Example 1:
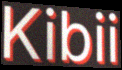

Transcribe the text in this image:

Kibii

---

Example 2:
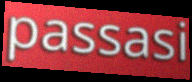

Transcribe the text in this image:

passasi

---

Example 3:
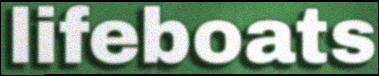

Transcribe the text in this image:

lifeboats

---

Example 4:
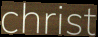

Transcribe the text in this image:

christ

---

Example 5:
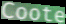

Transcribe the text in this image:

Coote